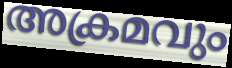
അക്രമവും